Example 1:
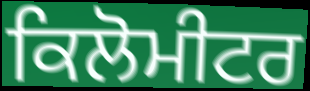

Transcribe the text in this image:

ਕਿਲੋਮੀਟਰ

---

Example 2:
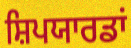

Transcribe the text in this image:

ਸ਼ਿਪਯਾਰਡਾਂ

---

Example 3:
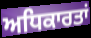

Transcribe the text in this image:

ਅਧਿਕਾਰਤਾਂ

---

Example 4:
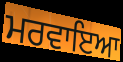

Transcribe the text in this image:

ਮਰਵਾਇਆ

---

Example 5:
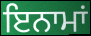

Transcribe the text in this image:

ਇਨਾਮਾਂ